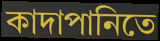
কাদাপানিতে